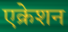
एक्रेशन